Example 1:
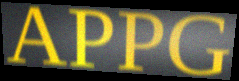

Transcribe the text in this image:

APPG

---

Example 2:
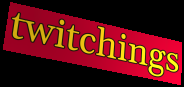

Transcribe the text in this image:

twitchings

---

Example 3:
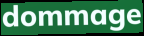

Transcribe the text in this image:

dommage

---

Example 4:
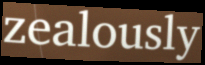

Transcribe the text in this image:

zealously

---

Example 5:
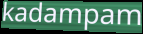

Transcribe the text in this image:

kadampam